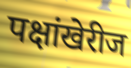
पक्षांखेरीज